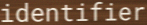
identifier